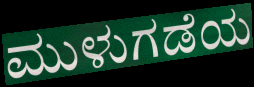
ಮುಳುಗಡೆಯ